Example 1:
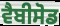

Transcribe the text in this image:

ਵੈਬੀਸੋਡ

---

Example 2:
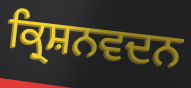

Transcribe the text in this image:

ਕ੍ਰਿਸ਼ਨਵਦਨ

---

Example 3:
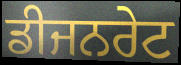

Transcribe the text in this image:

ਡੀਜਨਰੇਟ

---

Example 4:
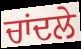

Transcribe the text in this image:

ਚਾਂਦਲੇ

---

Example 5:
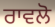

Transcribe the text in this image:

ਰਾਵਲੋ